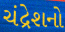
ચંદ્રેશનો